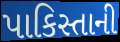
પાકિસ્તાની